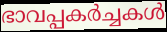
ഭാവപ്പകർച്ചകൾ